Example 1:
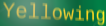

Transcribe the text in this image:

Yellowing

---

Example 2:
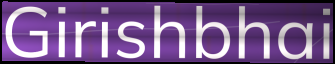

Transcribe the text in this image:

Girishbhai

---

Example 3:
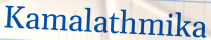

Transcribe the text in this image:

Kamalathmika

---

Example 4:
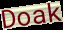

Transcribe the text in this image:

Doak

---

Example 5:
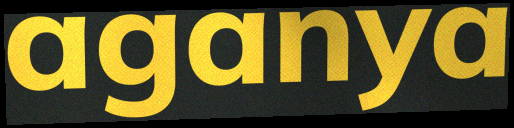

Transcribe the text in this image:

aganya